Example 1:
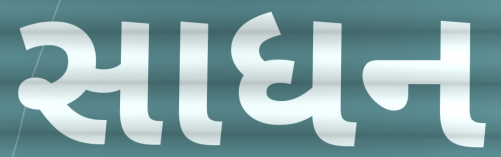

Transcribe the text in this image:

સાધન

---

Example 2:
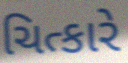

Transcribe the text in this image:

ચિત્કારે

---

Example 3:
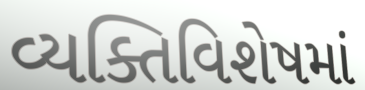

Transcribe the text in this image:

વ્યક્તિવિશેષમાં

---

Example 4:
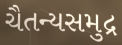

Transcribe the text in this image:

ચૈતન્યસમુદ્ર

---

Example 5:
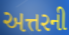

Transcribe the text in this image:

અત્તરની